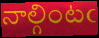
నాల్గింటఁ